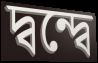
দ্বন্দ্বে